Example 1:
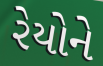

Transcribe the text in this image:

રેયોને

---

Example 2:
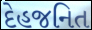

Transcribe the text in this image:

દેહજનિત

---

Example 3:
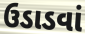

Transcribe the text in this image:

ઉડાડવાં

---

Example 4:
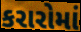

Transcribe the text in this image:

કરારોમાં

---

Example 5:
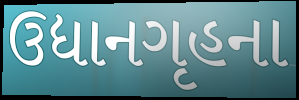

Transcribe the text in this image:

ઉદ્યાનગૃહના